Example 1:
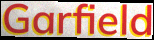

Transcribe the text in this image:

Garfield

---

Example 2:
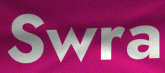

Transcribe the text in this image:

Swra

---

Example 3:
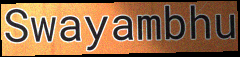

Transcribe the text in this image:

Swayambhu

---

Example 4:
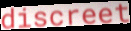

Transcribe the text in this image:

discreet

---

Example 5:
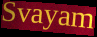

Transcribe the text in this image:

Svayam